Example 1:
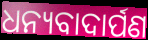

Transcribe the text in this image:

ଧନ୍ୟବାଦାର୍ପଣ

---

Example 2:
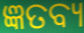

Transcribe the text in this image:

ଜ୍ଞତବ୍ୟ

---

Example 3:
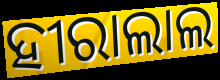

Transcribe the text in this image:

ହୀରାଲାଲ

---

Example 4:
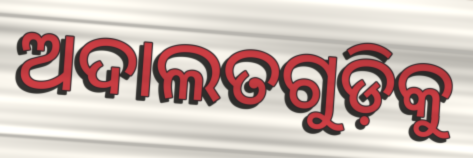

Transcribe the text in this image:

ଅଦାଲତଗୁଡ଼ିକୁ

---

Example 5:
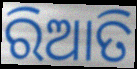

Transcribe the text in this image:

ରିଆତି